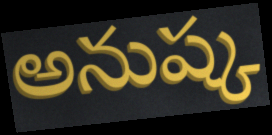
అనుష్క